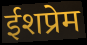
ईशप्रेम